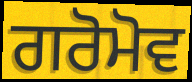
ਗਰੋਮੋਵ